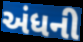
અંધની